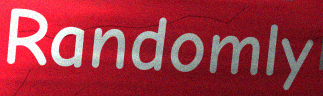
Randomly